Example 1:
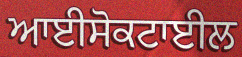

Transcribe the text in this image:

ਆਈਸੋਕਟਾਈਲ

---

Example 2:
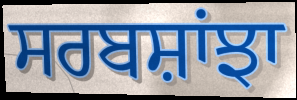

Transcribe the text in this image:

ਸਰਬਸ਼ਾਂਝਾ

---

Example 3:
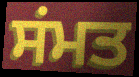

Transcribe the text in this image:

ਸਂਮਤ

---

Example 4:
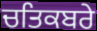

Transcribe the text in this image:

ਚਤਿਕਬਰੇ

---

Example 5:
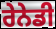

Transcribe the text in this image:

ਰੇਨੇਡੀ